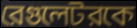
রেগুলেটরকে